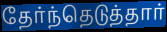
தேர்ந்தெடுத்தார்